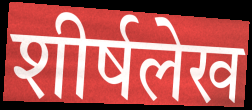
शीर्षलेख